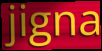
jigna